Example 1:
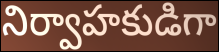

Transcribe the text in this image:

నిర్వాహకుడిగా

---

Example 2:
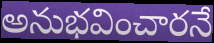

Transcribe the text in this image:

అనుభవించారనే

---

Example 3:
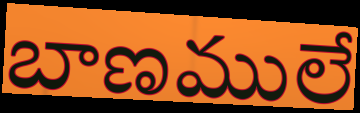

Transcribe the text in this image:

బాణములే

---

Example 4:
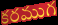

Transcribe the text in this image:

కరముగ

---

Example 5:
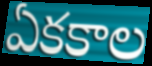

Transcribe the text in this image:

ఏకకాల